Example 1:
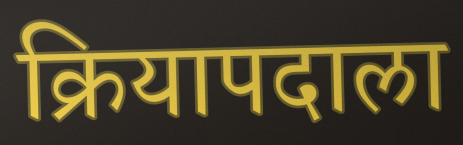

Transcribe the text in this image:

क्रियापदाला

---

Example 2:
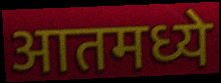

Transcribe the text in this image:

आतमध्ये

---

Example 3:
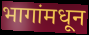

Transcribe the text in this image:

भागांमधून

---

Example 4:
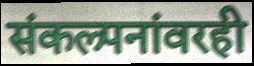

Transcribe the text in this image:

संकल्पनांवरही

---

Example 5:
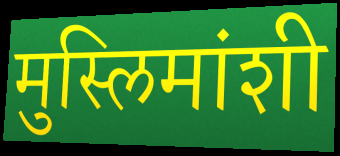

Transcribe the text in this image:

मुस्लिमांशी